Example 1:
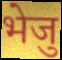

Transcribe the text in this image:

भेजु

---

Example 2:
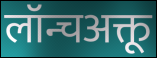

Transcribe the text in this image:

लॉन्चअक्तू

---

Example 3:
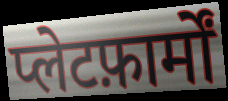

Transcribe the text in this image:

प्लेटफ़ार्मों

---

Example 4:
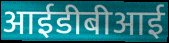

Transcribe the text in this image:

आईडीबीआई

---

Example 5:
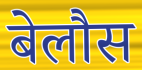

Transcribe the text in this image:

बेलौस